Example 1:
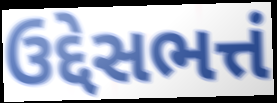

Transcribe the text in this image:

ઉદ્દેસભત્તં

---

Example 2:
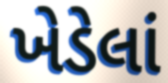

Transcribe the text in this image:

ખેડેલાં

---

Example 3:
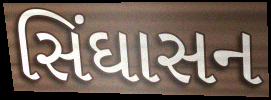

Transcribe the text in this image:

સિંઘાસન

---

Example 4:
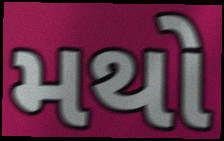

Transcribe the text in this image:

મથો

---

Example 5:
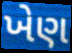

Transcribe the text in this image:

ખેણ